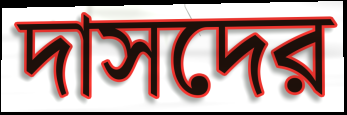
দাসদের